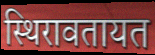
स्थिरावतायत